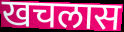
खचलास